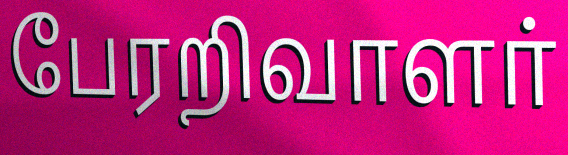
பேரறிவாளர்